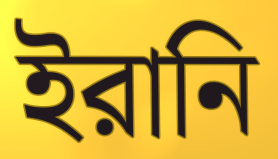
ইরানি